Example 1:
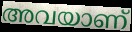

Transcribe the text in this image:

അവയാണ്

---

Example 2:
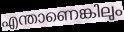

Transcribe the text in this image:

എന്താണെങ്കിലും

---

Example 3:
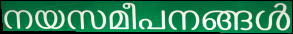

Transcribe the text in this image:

നയസമീപനങ്ങൾ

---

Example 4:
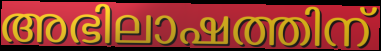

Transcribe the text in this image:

അഭിലാഷത്തിന്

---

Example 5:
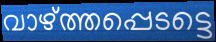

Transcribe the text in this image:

വാഴ്ത്തപ്പെടട്ടെ